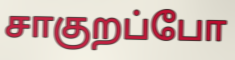
சாகுறப்போ